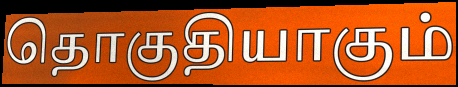
தொகுதியாகும்